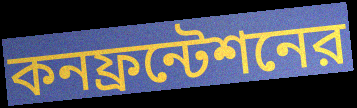
কনফ্রন্টেশনের